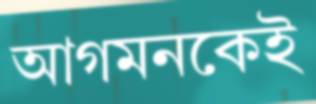
আগমনকেই